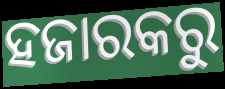
ହଜାରକରୁ